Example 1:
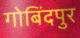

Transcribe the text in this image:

गोबिंदपुर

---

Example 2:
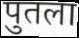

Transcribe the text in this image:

पुतला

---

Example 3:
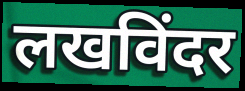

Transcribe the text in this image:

लखविंदर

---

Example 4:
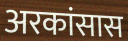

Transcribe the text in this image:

अरकांसास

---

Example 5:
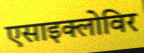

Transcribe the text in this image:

एसाइक्लोविर